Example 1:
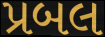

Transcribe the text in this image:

પ્રબલ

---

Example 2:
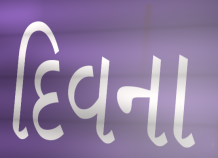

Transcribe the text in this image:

દિવના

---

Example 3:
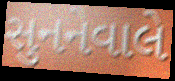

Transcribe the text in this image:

સુનનેવાલે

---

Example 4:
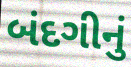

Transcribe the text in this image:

બંદગીનું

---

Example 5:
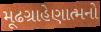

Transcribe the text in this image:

મૂઢગ્રાહેણાત્મનો